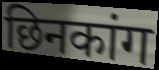
छिनकांग